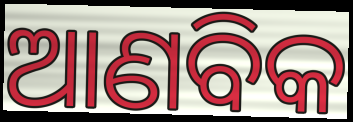
ଆଣବିକ